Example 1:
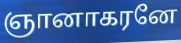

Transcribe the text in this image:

ஞானாகரனே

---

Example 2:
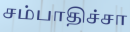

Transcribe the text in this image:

சம்பாதிச்சா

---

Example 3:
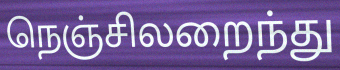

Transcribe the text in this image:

நெஞ்சிலறைந்து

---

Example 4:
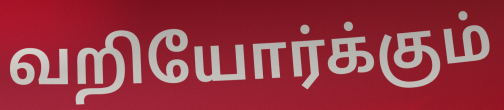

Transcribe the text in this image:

வறியோர்க்கும்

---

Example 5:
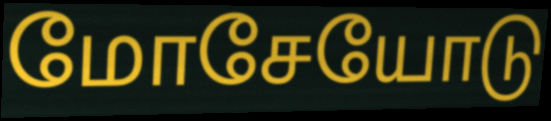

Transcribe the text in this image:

மோசேயோடு